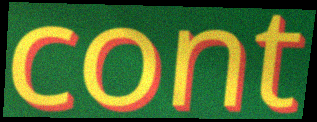
cont